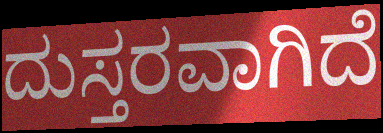
ದುಸ್ತರವಾಗಿದೆ